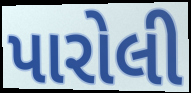
પારોલી